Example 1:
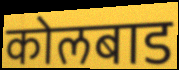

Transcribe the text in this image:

कोलबाड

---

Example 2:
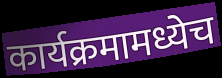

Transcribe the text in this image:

कार्यक्रमामध्येच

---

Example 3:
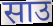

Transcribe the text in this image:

साउ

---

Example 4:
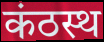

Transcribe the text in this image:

कंठस्थ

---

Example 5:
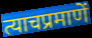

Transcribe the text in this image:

त्याचप्रमाणें